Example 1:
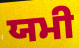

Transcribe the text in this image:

ਯਮੀ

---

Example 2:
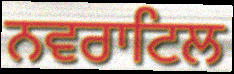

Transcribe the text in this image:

ਨਵਰਾਟਿਲ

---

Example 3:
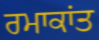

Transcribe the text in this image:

ਰਮਾਕਾਂਤ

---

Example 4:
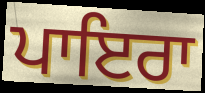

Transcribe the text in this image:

ਪਾਇਰਾ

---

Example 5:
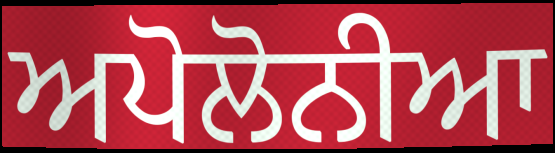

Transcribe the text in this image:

ਅਪੋਲੋਨੀਆ